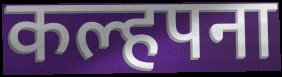
कल्हपना